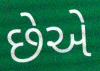
છેએ